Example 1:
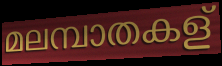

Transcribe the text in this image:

മലമ്പാതകള്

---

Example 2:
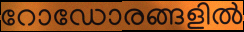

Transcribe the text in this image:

റോഡോരങ്ങളിൽ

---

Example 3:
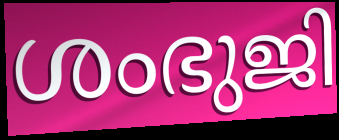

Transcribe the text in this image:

ശംഭുജി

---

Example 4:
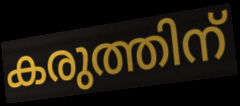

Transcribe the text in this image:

കരുത്തിന്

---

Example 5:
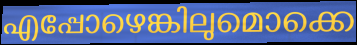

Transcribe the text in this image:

എപ്പോഴെങ്കിലുമൊക്കെ